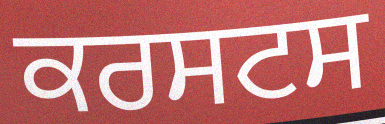
ਕਰਸਟਸ